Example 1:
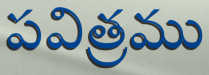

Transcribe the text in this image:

పవిత్రము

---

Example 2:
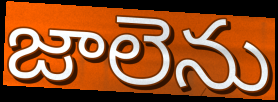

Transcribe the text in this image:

జాలెను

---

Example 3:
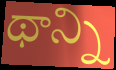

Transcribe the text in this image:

థాన్ని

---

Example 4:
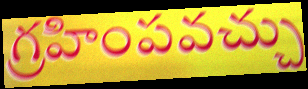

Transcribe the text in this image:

గ్రహింపవచ్చు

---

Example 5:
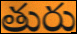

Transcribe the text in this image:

తురు